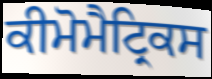
ਕੀਮੋਮੈਟ੍ਰਿਕਸ